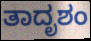
ತಾದೃಶಂ